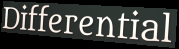
Differential